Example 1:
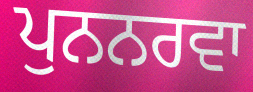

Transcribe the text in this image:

ਪੁਨਨਰਵਾ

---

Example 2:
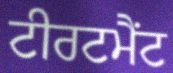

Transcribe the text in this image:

ਟੀਰਟਮੈਂਟ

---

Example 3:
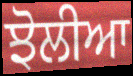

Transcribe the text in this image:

ਝੋਲੀਆ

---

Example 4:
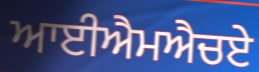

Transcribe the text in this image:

ਆਈਐਮਐਚਏ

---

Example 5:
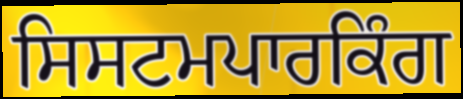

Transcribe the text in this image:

ਸਿਸਟਮਪਾਰਕਿੰਗ